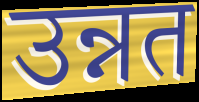
उन्नत